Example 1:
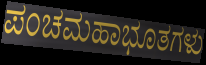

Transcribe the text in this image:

ಪಂಚಮಹಾಭೂತಗಳು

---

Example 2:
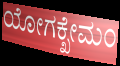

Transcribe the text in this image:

ಯೋಗಕ್ಖೇಮಂ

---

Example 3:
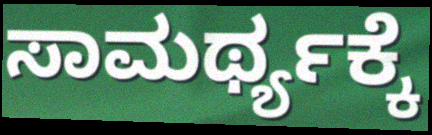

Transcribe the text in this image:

ಸಾಮರ್ಥ್ಯಕ್ಕೆ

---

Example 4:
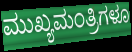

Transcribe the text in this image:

ಮುಖ್ಯಮಂತ್ರಿಗಳೂ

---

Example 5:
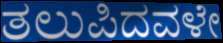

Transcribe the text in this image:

ತಲುಪಿದವಳೇ